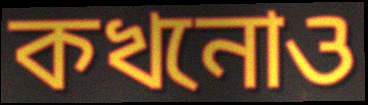
কখনোও